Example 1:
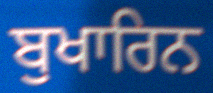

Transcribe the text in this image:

ਬੁਖਾਰਿਨ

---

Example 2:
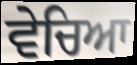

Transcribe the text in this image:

ਵੇਚਿਆ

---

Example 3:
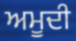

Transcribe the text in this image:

ਅਮੂਦੀ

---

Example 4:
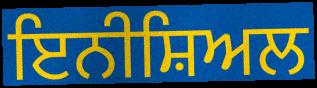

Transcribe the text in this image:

ਇਨੀਸ਼ਿਅਲ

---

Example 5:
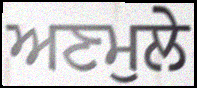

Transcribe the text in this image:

ਅਣਮੁਲੇ